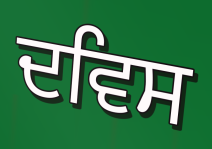
ਦਵਿਸ